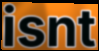
isnt